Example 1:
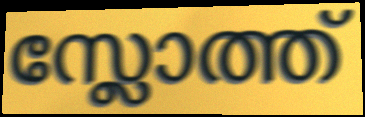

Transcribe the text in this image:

സ്ലോത്ത്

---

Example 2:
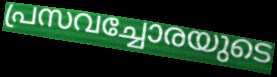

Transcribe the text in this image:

പ്രസവച്ചോരയുടെ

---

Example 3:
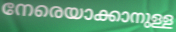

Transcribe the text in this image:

നേരെയാക്കാനുള്ള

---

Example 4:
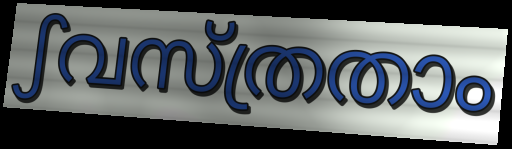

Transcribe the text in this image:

ഽവസ്ത്രതാം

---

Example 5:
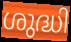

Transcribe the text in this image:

ശുദ്ധി